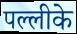
पल्लीके